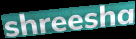
shreesha